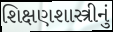
શિક્ષણશાસ્ત્રીનું